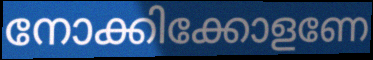
നോക്കിക്കോളണേ